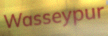
Wasseypur